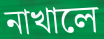
নাখালে